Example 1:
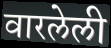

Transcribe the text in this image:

वारलेली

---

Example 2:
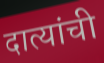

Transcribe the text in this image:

दात्यांची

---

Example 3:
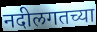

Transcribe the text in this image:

नदीलगतच्या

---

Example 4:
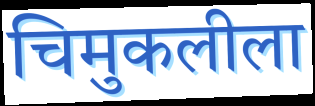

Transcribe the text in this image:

चिमुकलीला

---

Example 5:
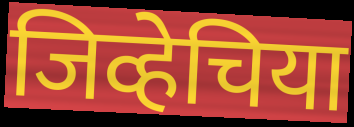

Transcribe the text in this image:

जिव्हेचिया